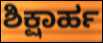
ಶಿಕ್ಷಾರ್ಹ